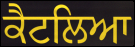
ਕੈਟਲਿਆ